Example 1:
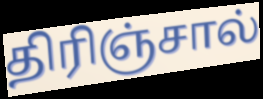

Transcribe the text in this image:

திரிஞ்சால்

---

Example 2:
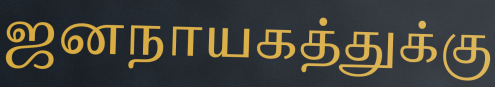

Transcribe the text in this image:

ஜனநாயகத்துக்கு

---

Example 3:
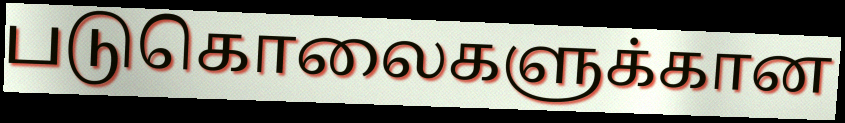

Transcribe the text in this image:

படுகொலைகளுக்கான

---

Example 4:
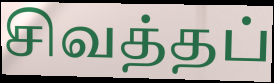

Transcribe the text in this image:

சிவத்தப்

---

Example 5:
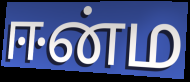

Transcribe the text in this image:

ஈன்ம